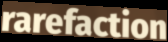
rarefaction